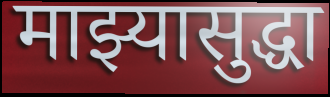
माझ्यासुद्धा